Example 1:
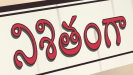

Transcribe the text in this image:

నిశితంగా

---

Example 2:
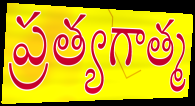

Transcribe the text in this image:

ప్రత్యగాత్మ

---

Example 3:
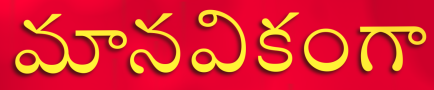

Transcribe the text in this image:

మానవికంగా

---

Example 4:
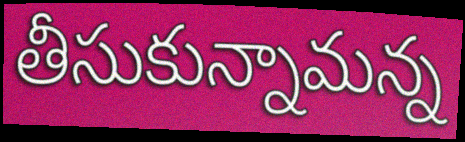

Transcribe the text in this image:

తీసుకున్నామన్న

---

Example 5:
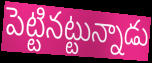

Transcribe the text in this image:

పెట్టినట్టున్నాడు